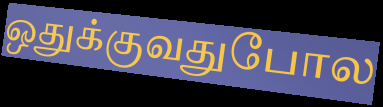
ஒதுக்குவதுபோல